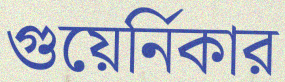
গুয়ের্নিকার